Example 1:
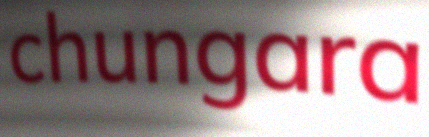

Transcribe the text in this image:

chungara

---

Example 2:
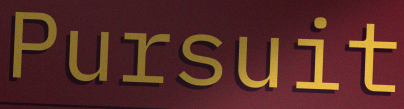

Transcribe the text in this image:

Pursuit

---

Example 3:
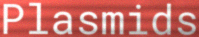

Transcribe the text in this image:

Plasmids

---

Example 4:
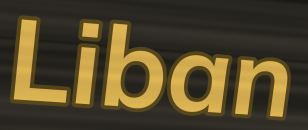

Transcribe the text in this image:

Liban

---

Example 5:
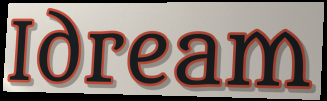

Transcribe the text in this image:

Idream